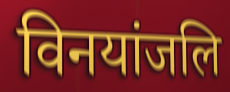
विनयांजलि